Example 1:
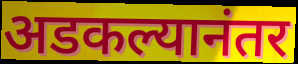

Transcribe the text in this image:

अडकल्यानंतर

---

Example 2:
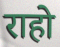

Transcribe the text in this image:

राहो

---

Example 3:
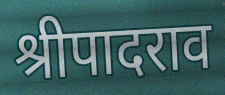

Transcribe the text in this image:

श्रीपादराव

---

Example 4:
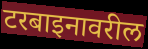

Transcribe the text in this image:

टरबाइनावरील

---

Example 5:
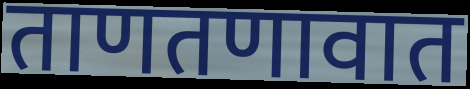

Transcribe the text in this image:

ताणतणावात